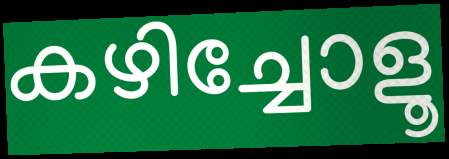
കഴിച്ചോളൂ